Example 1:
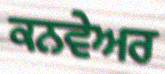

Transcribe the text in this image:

ਕਨਵੇਅਰ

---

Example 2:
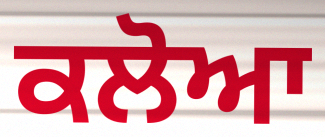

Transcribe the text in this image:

ਕਲੋਆ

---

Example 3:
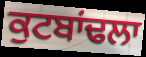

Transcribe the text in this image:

ਕੁਟਬਾਂਢਲਾ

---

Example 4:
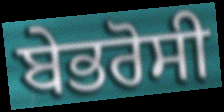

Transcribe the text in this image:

ਬੇਭਰੋਸੀ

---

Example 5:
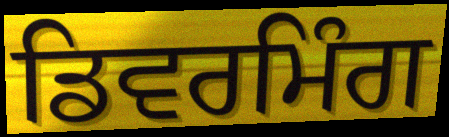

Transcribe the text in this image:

ਡਿਵਰਮਿੰਗ